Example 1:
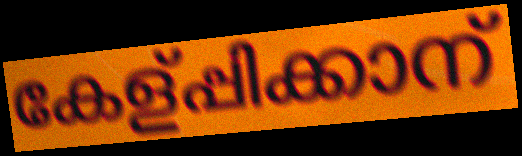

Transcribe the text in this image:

കേള്പ്പിക്കാന്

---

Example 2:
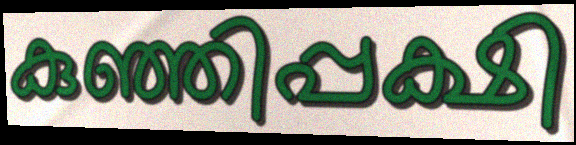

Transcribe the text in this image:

കുഞ്ഞിപ്പക്ഷി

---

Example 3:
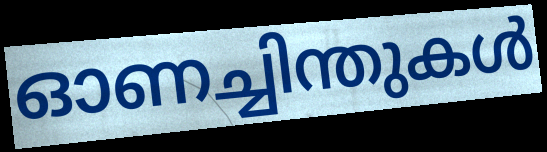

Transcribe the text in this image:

ഓണച്ചിന്തുകൾ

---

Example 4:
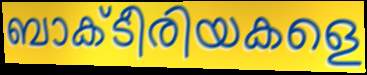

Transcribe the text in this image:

ബാക്ടീരിയകളെ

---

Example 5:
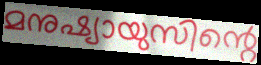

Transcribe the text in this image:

മനുഷ്യായുസിന്റെ